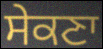
ਸੇਕਣਾ